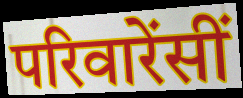
परिवारेंसीं